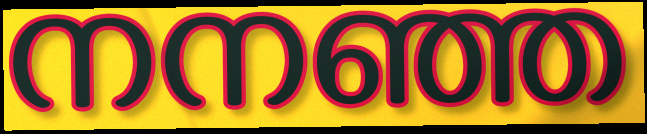
നനഞ്ഞ